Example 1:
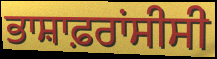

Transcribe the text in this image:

ਭਾਸ਼ਾਫ਼ਰਾਂਸੀਸੀ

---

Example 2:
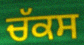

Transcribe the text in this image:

ਚੱਕਸ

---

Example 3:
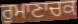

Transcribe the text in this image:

ਰੁਮਾਣਾਚਕ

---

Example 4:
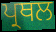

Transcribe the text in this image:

ਪ੍ਰਥਲ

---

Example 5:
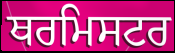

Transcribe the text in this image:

ਥਰਮਿਸਟਰ